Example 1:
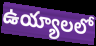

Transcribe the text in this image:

ఉయ్యాలలో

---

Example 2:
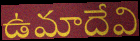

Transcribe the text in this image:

ఉమాదేవి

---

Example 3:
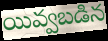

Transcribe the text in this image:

యివ్వబడిన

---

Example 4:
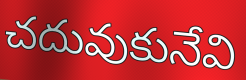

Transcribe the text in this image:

చదువుకునేవి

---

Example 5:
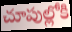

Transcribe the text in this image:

చూపుల్లోకి